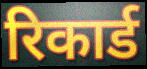
रिकार्ड